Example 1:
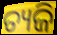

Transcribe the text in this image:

ତ୍ୟଜି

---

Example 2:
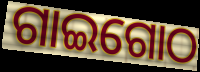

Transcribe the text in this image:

ଗାଇଗୋଠ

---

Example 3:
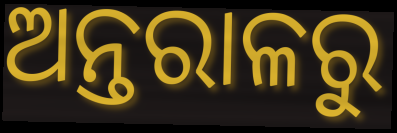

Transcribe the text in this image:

ଅନ୍ତରାଳରୁ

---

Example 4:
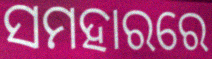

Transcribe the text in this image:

ସମହାରରେ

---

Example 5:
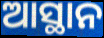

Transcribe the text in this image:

ଆସ୍ଥାନ